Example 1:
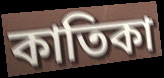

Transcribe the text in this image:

কাতিকা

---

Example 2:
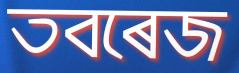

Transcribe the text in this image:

তবৰেজ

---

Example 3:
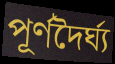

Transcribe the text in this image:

পূৰ্ণদৈৰ্ঘ্য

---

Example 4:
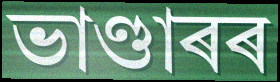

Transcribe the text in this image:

ভাণ্ডাৰৰ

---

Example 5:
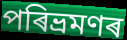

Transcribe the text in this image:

পৰিভ্ৰমণৰ